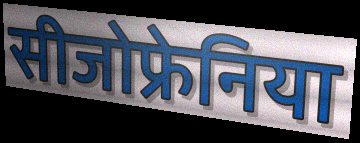
सीजोफ्रेनिया